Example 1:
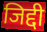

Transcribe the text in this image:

जिद्दी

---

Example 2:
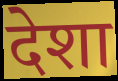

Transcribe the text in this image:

देशा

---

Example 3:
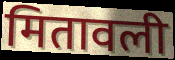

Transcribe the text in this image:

मितावली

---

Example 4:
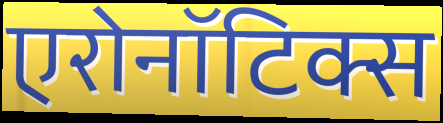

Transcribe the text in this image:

एरोनॉटिक्स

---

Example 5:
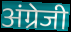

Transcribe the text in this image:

अंग्रेजी